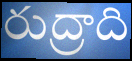
రుద్రాది